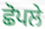
ਛੋਪਲੇ